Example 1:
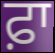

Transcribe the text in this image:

ਫ਼ਾ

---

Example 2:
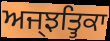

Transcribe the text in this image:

ਅਜ੍ਝਤ੍ਤਿਕਾ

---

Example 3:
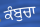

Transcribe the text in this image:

ਕੰਬੁਚਾ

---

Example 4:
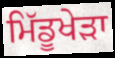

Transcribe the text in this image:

ਮਿੱਡੂਖੇੜਾ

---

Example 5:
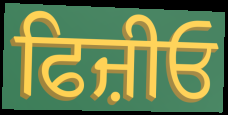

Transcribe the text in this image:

ਫਿਜ਼ੀਓ